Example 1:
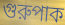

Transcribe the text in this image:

গুরুপাক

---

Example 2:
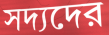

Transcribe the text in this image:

সদ্যদের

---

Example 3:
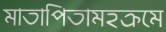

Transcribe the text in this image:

মাতাপিতামহক্রমে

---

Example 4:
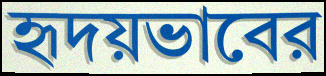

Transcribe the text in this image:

হৃদয়ভাবের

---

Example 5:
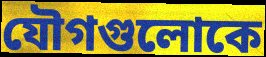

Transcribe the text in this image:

যৌগগুলোকে